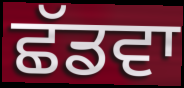
ਛੱਡਵਾ